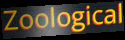
Zoological